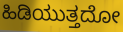
ಹಿಡಿಯುತ್ತದೋ